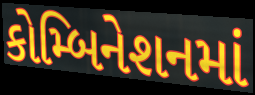
કોમ્બિનેશનમાં